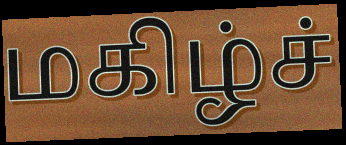
மகிழ்ச்